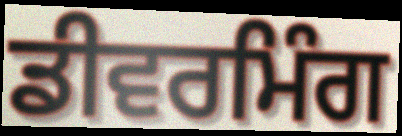
ਡੀਵਰਮਿੰਗ